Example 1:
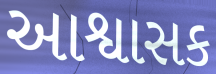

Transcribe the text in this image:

આશ્વાસક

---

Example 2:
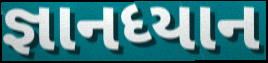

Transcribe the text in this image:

જ્ઞાનધ્યાન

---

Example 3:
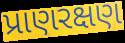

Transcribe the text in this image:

પ્રાણરક્ષણ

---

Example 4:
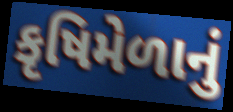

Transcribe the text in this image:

કૃષિમેળાનું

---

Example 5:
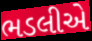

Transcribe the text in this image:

ભડલીએ